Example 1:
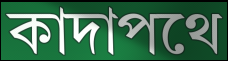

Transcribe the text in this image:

কাদাপথে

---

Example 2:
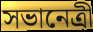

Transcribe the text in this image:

সভানেত্রী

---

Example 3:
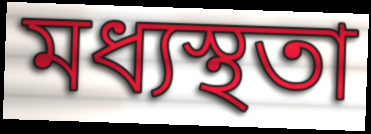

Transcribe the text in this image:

মধ্যস্থতা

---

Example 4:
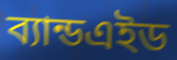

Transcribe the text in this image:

ব্যান্ডএইড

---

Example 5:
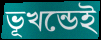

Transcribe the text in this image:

ভূখন্ডেই